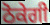
ਠੋਕੇਗੀ